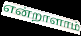
என்றாளாம்